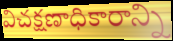
విచక్షణాధికారాన్ని